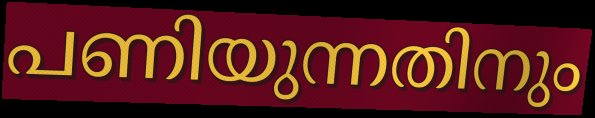
പണിയുന്നതിനും